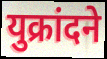
युक्रांदने